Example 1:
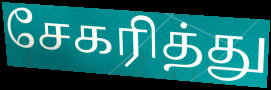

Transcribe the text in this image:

சேகரித்து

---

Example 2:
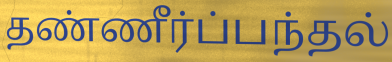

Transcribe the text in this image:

தண்ணீர்ப்பந்தல்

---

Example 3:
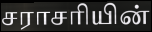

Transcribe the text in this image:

சராசரியின்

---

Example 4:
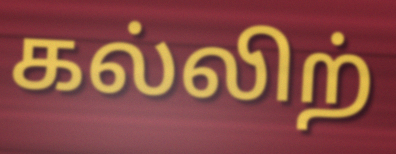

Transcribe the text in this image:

கல்லிற்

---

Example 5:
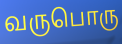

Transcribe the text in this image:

வருபொரு